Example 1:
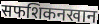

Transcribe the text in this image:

सफशिकनखान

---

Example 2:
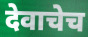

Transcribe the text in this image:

देवाचेच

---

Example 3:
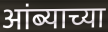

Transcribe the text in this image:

आंब्याच्या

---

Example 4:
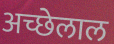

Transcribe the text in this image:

अच्छेलाल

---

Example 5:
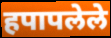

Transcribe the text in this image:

हपापलेले